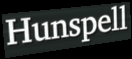
Hunspell